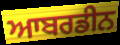
ਆਬਰਡੀਨ